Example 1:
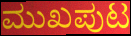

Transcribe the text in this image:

ಮುಖಪುಟ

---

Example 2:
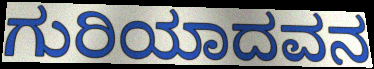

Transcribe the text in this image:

ಗುರಿಯಾದವನ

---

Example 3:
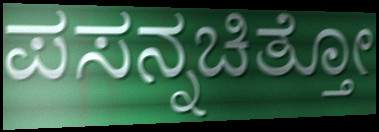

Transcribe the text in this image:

ಪಸನ್ನಚಿತ್ತೋ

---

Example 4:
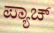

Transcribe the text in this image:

ಪ್ಯಾಚ್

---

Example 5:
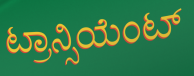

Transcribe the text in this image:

ಟ್ರಾನ್ಸಿಯೆಂಟ್